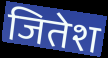
जितेश